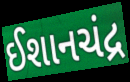
ઈશાનચંદ્ર